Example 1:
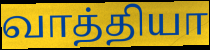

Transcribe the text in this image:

வாத்தியா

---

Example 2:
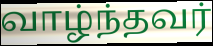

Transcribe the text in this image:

வாழ்ந்தவர்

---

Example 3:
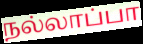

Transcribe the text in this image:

நல்லாப்பா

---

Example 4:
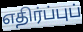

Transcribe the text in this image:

எதிர்ப்புப்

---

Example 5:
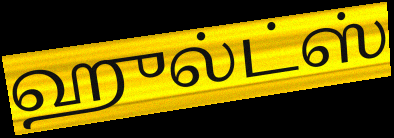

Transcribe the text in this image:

ஹுல்ட்ஸ்